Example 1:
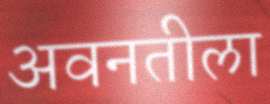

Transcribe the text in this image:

अवनतीला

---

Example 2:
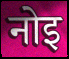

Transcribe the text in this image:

नोइ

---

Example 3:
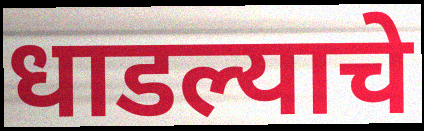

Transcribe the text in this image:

धाडल्याचे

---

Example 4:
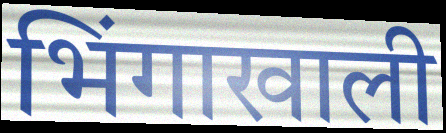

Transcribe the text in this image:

भिंगाखाली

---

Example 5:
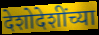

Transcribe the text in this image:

देशोदेशींच्या